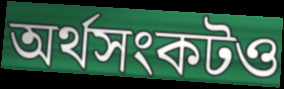
অর্থসংকটও